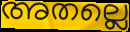
അതല്ലെ